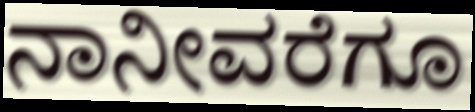
ನಾನೀವರೆಗೂ